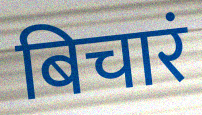
बिचारं